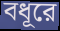
বধূরে